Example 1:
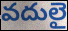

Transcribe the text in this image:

వదులై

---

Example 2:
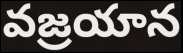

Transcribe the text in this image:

వజ్రయాన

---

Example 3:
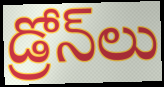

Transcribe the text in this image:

డ్రోన్‌లు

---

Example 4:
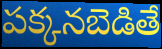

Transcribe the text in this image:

పక్కనబెడితే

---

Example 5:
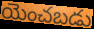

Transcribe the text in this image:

యెంచబడు